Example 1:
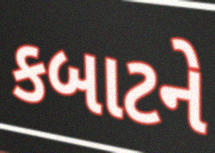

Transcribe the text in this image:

કબાટને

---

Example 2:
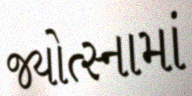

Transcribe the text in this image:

જ્યોત્સ્નામાં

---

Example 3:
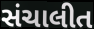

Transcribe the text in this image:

સંચાલીત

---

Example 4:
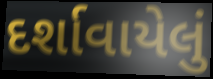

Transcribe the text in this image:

દર્શાવાયેલું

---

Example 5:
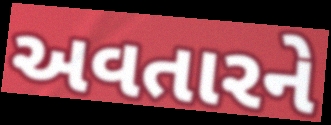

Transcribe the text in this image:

અવતારને